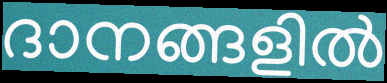
ദാനങ്ങളിൽ